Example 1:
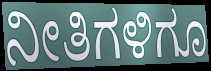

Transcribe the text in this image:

ನೀತಿಗಳಿಗೂ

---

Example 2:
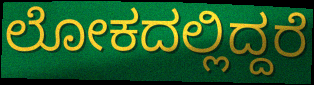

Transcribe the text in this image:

ಲೋಕದಲ್ಲಿದ್ದರೆ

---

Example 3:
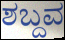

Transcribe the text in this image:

ಶಬ್ದವ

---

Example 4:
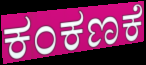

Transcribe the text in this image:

ಕಂಕಣಕೆ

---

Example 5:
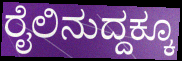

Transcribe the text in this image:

ರೈಲಿನುದ್ದಕ್ಕೂ